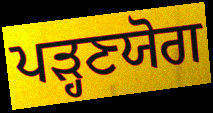
ਪੜ੍ਹਣਯੋਗ